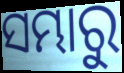
ସମ୍ଭାରୁ